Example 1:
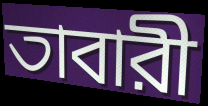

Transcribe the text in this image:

তাবারী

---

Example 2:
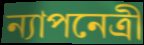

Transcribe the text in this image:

ন্যাপনেত্রী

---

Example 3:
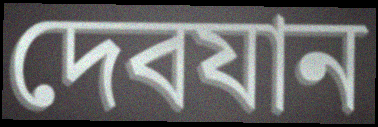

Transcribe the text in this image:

দেবযান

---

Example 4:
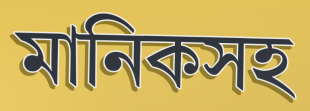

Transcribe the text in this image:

মানিকসহ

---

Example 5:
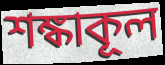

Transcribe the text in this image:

শঙ্কাকূল